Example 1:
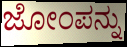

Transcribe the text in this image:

ಜೋಂಪನ್ನು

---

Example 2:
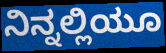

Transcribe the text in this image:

ನಿನ್ನಲ್ಲಿಯೂ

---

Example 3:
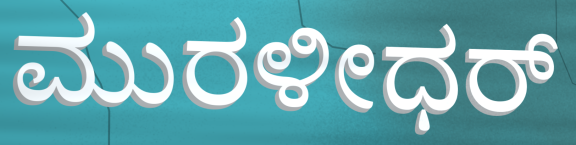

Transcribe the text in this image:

ಮುರಳೀಧರ್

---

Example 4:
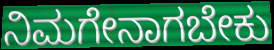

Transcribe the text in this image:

ನಿಮಗೇನಾಗಬೇಕು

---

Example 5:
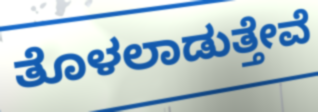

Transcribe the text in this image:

ತೊಳಲಾಡುತ್ತೇವೆ